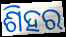
ଶିହର